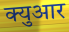
क्युआर